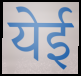
येई